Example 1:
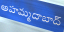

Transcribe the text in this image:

అహమ్మదాబాద్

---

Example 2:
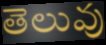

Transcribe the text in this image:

తెలువు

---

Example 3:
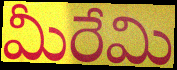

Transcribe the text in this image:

మీరేమి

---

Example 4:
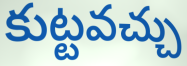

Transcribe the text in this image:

కుట్టవచ్చు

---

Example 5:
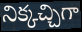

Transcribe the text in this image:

నిక్కచ్చిగా